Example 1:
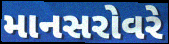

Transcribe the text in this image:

માનસરોવરે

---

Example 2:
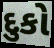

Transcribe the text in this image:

દુકો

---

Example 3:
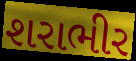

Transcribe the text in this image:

શરાભીર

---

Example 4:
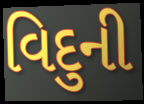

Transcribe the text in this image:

વિદુની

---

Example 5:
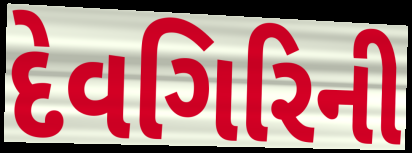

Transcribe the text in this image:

દેવગિરિની